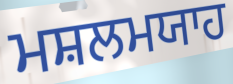
ਮਸ਼ਲਮਯਾਹ